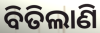
ବିତିଲାଣି